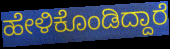
ಹೇಳಿಕೊಂಡಿದ್ದಾರೆ